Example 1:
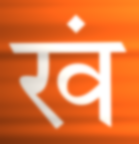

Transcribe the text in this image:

खं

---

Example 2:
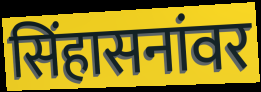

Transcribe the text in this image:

सिंहासनांवर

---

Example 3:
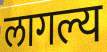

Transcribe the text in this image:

लागल्य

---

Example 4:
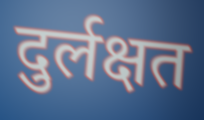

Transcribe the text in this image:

दुर्लक्षत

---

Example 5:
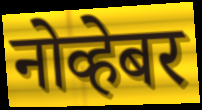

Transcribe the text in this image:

नोव्हेबर